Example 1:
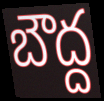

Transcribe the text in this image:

బౌద్ద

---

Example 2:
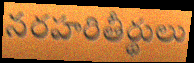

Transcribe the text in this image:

నరహరితీర్థులు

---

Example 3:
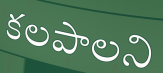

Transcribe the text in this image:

కలపాలని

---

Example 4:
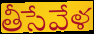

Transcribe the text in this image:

తీసేవేళ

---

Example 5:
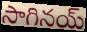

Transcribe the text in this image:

సాగినయ్